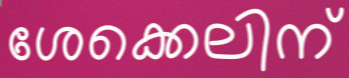
ശേക്കെലിന്